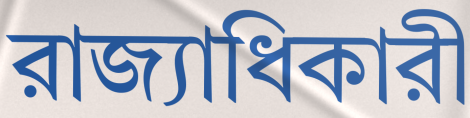
রাজ্যাধিকারী